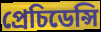
প্ৰেচিডেন্সি